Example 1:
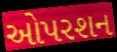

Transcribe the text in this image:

ઓપરશન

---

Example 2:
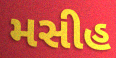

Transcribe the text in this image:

મસીહ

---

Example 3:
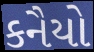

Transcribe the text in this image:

કનૈયો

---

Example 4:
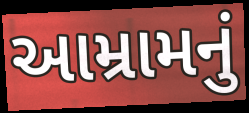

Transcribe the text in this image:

આમ્રામનું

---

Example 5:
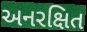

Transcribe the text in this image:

અનરક્ષિત